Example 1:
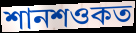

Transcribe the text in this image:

শানশওকত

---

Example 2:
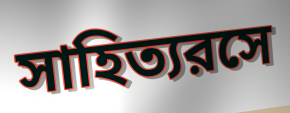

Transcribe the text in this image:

সাহিত্যরসে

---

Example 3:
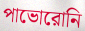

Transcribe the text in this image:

পাভোরোনি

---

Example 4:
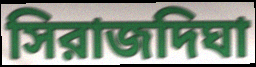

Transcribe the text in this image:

সিরাজদিঘা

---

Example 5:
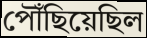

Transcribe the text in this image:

পৌঁছিয়েছিল